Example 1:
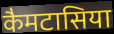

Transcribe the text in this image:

कैमटासिया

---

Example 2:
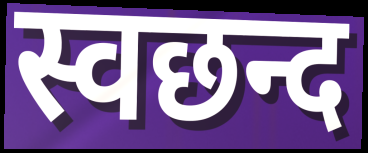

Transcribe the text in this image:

स्वछन्द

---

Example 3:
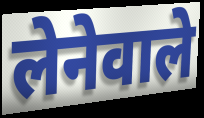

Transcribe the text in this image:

लेनेवाले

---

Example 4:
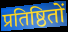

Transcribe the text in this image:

प्रतिष्ठितों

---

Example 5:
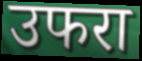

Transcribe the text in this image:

उफरा